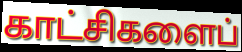
காட்சிகளைப்